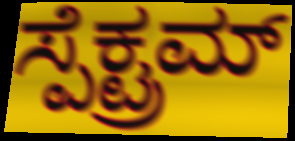
ಸ್ಪೆಕ್ಟ್ರಮ್